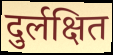
दुर्लक्षित